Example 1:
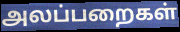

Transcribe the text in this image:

அலப்பறைகள்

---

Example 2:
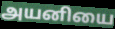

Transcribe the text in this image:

அயனியை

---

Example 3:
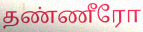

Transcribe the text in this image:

தண்ணீரோ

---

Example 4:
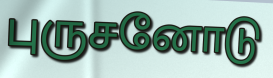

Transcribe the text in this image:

புருசனோடு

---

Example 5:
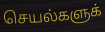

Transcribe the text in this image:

செயல்களுக்